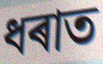
ধৰাত